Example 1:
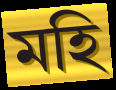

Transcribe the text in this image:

মহি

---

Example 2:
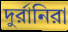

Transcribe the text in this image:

দুর্রানিরা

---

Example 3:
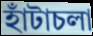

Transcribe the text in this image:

হাঁটাচলা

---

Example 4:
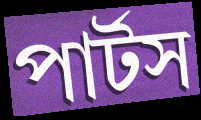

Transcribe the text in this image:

পার্টস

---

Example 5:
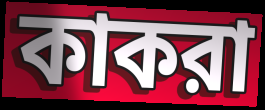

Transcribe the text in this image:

কাকরা